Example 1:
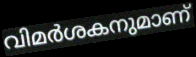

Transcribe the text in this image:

വിമർശകനുമാണ്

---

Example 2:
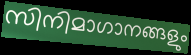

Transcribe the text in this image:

സിനിമാഗാനങ്ങളും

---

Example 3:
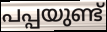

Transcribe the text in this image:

പപ്പയുണ്ട്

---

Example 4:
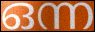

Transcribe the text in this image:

ഒന്ന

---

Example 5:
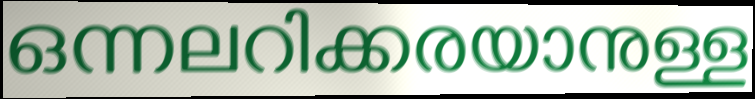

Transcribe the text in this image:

ഒന്നലറിക്കരയാനുള്ള